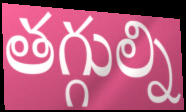
తగ్గుల్ని